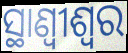
ସ୍ଥାଣ୍ୱୀଶ୍ଵର